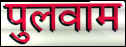
पुलवाम